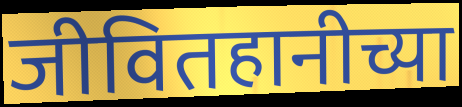
जीवितहानीच्या